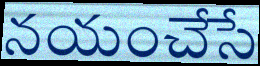
నయంచేసే